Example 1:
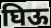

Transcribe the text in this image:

घिऊ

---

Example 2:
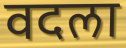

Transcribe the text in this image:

वदला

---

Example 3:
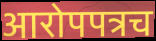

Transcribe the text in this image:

आरोपपत्रच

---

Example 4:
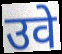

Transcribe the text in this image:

उवे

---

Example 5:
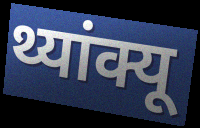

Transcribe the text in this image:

थ्यांक्यू